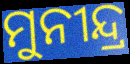
ମୁନୀନ୍ଦ୍ର